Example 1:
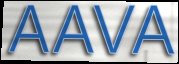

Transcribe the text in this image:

AAVA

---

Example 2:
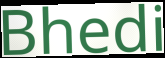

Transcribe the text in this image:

Bhedi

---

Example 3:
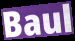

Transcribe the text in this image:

Baul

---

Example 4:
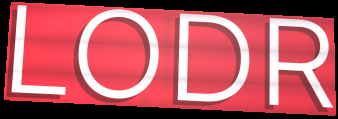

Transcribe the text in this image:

LODR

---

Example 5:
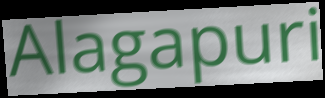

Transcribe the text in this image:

Alagapuri